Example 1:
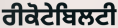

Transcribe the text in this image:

ਰੀਕੋਟੇਬਿਲਟੀ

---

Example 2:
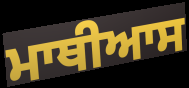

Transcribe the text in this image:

ਮਾਥੀਆਸ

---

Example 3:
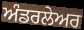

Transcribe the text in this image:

ਅੰਡਰਲੇਅਰ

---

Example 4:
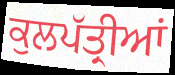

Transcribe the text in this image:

ਕੁਲਪੱਤ੍ਰੀਆਂ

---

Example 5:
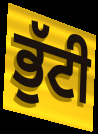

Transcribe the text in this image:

ਭੁੱਟੀ